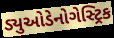
ડ્યુઓડેનોગેસ્ટ્રિક